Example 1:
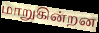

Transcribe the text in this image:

மாறுகின்றன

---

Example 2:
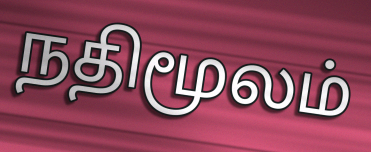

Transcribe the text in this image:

நதிமூலம்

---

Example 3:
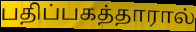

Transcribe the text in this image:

பதிப்பகத்தாரால்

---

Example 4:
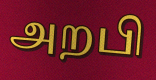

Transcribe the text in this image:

அறபி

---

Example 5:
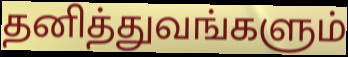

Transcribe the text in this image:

தனித்துவங்களும்